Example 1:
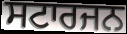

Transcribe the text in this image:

ਸਟਾਰਜਨ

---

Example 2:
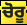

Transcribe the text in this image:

ਚੋਰੂ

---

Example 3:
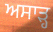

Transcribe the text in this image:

ਅਸਾੜ੍ਹ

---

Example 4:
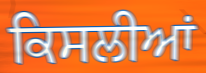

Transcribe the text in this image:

ਕਿਸਲੀਆਂ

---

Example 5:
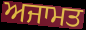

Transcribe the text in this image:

ਅਜਾਮਤ